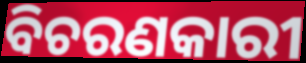
ବିଚରଣକାରୀ